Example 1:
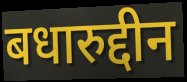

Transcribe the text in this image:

बधारुद्दीन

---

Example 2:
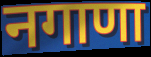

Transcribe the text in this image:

नगाणा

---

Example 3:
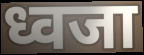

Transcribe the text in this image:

ध्वजा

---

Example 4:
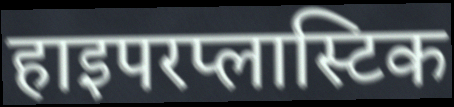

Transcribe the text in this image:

हाइपरप्लास्टिक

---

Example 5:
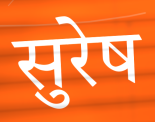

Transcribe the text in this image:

सुरेष